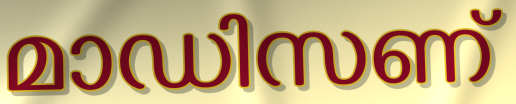
മാഡിസണ്